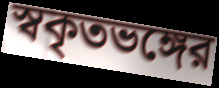
স্বকৃতভঙ্গের